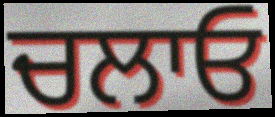
ਚਲਾਓ